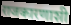
राजकारणाशी